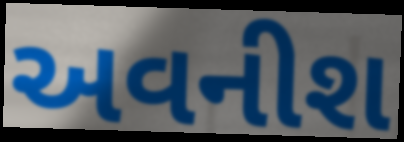
અવનીશ